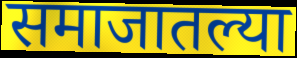
समाजातल्या